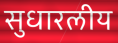
सुधारलीय